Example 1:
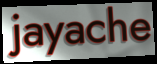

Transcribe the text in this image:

jayache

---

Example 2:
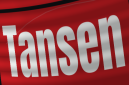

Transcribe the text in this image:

Tansen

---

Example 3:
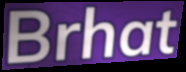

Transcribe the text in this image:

Brhat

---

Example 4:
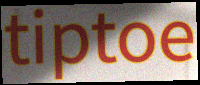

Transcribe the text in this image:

tiptoe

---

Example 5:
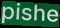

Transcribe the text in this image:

pishe